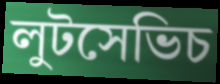
লুটসেভিচ